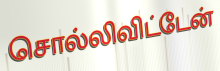
சொல்லிவிட்டேன்